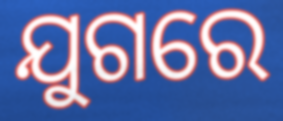
ଯୁଗରେ